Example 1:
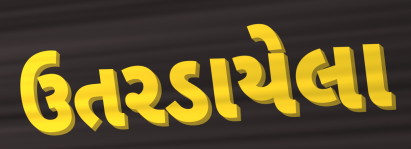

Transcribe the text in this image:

ઉતરડાયેલા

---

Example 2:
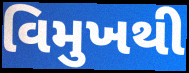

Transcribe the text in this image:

વિમુખથી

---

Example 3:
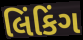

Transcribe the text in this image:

લિંકિંગ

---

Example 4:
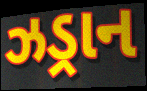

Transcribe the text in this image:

ઝડ્રાન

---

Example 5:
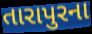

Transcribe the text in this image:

તારાપુરના